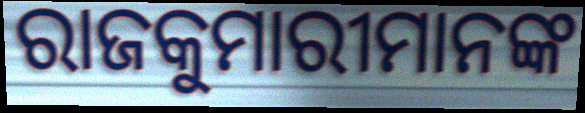
ରାଜକୁମାରୀମାନଙ୍କ